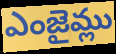
ఎంజైమ్లు